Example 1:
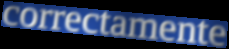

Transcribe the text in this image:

correctamente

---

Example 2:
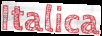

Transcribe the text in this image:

Italica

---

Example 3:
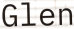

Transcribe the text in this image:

Glen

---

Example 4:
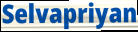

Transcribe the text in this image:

Selvapriyan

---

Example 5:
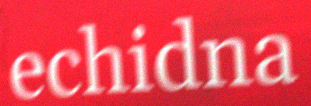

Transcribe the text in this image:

echidna